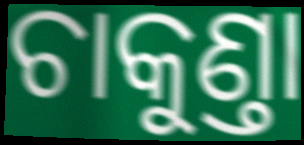
ଚାକୁଣ୍ତା